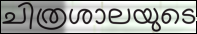
ചിത്രശാലയുടെ